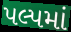
પલ્પમાં